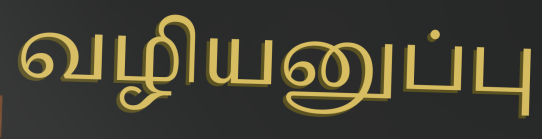
வழியனுப்பு